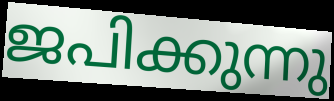
ജപിക്കുന്നു